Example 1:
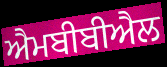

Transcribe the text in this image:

ਐਮਬੀਬੀਐਲ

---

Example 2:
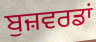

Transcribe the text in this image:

ਬੁਜ਼ਵਰਡਾਂ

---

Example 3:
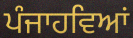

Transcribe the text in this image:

ਪੰਜਾਹਵਿਆਂ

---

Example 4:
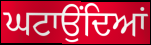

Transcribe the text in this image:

ਘਟਾਉਂਦਿਆਂ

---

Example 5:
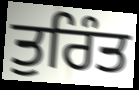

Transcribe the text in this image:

ਤੁਰਿੰਤ